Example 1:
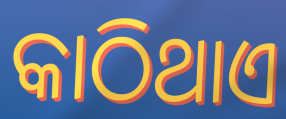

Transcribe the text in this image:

କାଠିଥାଏ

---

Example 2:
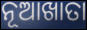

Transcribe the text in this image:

ନୂଆଖାତା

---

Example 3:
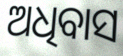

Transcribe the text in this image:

ଅଧିବାସ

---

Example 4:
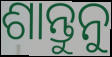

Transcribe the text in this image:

ଶାନ୍ତୁନୁ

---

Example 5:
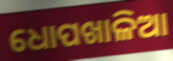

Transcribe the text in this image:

ଧୋପଖାଳିଆ